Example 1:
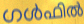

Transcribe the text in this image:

ഗൾഫിൽ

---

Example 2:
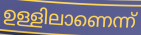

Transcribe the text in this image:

ഉള്ളിലാണെന്ന്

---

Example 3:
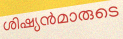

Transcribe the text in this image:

ശിഷ്യൻമാരുടെ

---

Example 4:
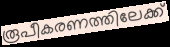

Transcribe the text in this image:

രൂപീകരണത്തിലേക്ക്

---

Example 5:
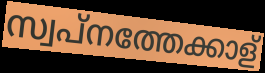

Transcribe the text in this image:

സ്വപ്നത്തേക്കാള്